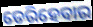
ଡେରିହେବାର